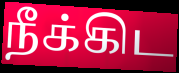
நீக்கிட